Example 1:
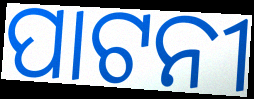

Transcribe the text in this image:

ପାଟନୀ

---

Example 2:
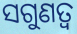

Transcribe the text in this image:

ସଗୁଣତ୍ଵ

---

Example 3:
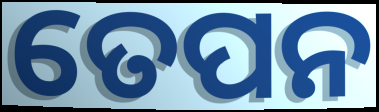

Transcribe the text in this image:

ତେପନ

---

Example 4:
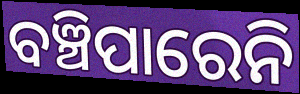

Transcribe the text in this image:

ବଞ୍ଚିପାରେନି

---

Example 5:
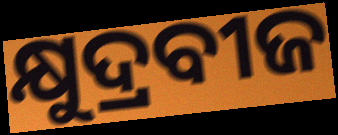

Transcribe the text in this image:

କ୍ଷୁଦ୍ରବୀଜ